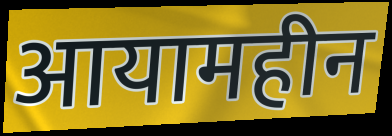
आयामहीन